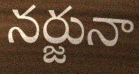
నర్జునా